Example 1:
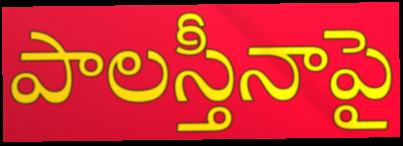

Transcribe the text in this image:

పాలస్తీనాపై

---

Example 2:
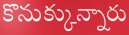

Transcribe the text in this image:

కొనుక్కున్నారు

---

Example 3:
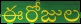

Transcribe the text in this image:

ఈరోజుల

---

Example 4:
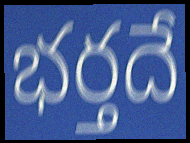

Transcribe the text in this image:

భర్తదే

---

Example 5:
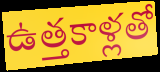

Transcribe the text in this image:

ఉత్తకాళ్లతో